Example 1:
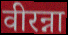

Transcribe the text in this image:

वीरन्ना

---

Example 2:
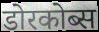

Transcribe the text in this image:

डोरकोब्स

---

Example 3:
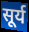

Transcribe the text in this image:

सूर्य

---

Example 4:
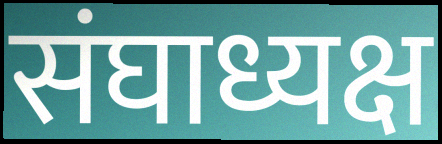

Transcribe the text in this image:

संघाध्यक्ष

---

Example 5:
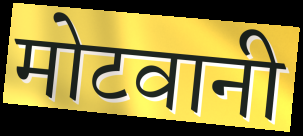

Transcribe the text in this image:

मोटवानी